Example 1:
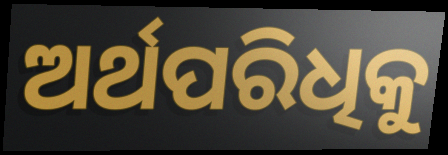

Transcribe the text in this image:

ଅର୍ଥପରିଧିକୁ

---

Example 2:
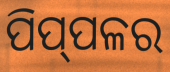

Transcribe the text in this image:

ପିପ୍‌ପଳର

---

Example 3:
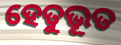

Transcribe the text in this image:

ହେତୁଭୂତ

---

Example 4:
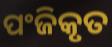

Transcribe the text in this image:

ପଂଜିକୃତ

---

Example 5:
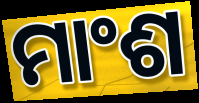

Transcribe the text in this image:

ମାଂଶ